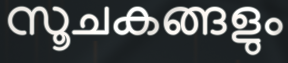
സൂചകങ്ങളും